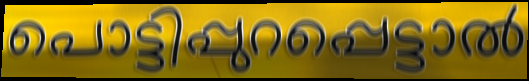
പൊട്ടിപ്പുറപ്പെട്ടാൽ